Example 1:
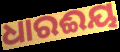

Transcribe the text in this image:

ଧାରଈୟ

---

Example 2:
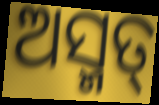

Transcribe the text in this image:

ଅସ୍ମତ୍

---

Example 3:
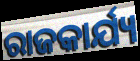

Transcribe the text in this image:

ରାଜକାର୍ଯ୍ୟ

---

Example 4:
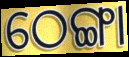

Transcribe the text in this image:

ଠେଙ୍ଗା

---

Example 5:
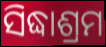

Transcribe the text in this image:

ସିଦ୍ଧାଶ୍ରମ